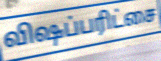
விஷப்பரிட்சை